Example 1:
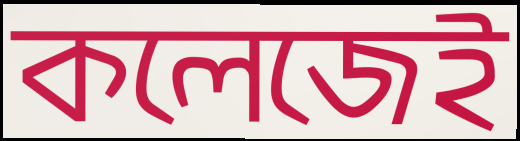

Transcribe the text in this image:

কলেজেই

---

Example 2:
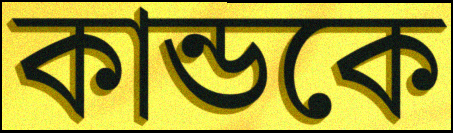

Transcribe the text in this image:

কান্ডকে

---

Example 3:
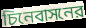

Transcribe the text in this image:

চিনেবাসনের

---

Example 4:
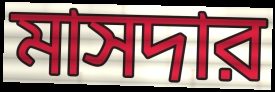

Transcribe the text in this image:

মাসদার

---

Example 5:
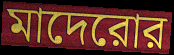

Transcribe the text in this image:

মাদেরোর